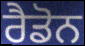
ਰੈਡੋਨ